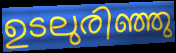
ഉടലുരിഞ്ഞു